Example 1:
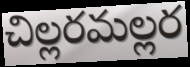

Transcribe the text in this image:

చిల్లరమల్లర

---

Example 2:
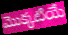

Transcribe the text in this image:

మొక్కటియే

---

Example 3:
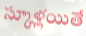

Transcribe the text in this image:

స్కూళ్లయితే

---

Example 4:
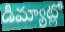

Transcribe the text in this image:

డీమ్యాట్లో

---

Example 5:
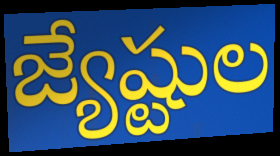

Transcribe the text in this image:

జ్యేష్టుల